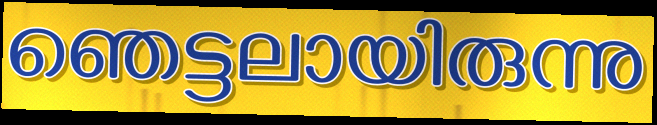
ഞെട്ടലായിരുന്നു